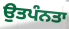
ਉਤਪੰਨਤਾ